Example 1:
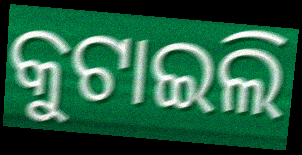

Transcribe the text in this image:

କୁଟାଇଲି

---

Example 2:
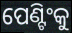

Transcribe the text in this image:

ପେଣ୍ଟିଂକୁ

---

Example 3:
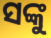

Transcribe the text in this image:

ସଙ୍କୁ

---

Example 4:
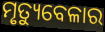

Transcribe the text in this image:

ମୃତ୍ୟୁବେଳାର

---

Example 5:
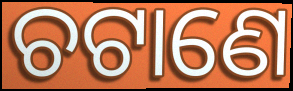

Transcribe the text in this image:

ଚଟାଣେ